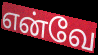
என்வே